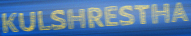
KULSHRESTHA